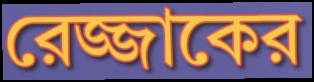
রেজ্জাকের